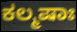
ಕಲ್ಮಷಾಃ